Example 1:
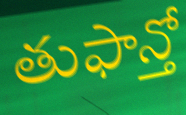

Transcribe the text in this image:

తుఫాన్తో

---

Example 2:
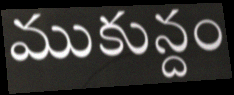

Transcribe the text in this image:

ముకున్దం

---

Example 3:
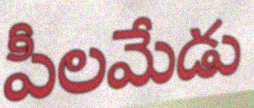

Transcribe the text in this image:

పీలమేడు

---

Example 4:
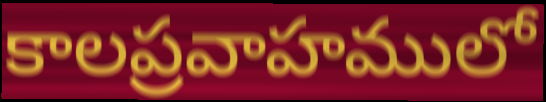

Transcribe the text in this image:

కాలప్రవాహములో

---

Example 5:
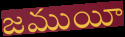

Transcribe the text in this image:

జముయీ